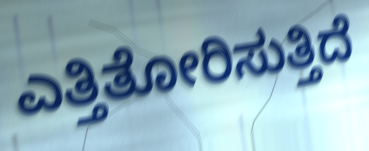
ಎತ್ತಿತೋರಿಸುತ್ತಿದೆ